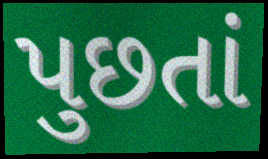
પુછતાં